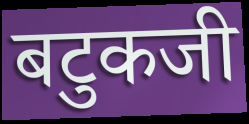
बटुकजी